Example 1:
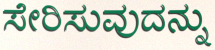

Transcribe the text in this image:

ಸೇರಿಸುವುದನ್ನು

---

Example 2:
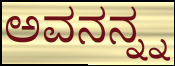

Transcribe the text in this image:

ಅವನನ್ನ್ನ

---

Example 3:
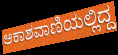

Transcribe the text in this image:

ಆಕಾಶವಾಣಿಯಲ್ಲಿದ್ದ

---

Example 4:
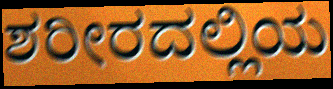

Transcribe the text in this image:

ಶರೀರದಲ್ಲಿಯ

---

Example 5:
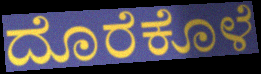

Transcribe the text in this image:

ದೊರೆಕೊಳೆ